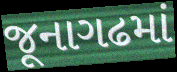
જૂનાગઢમાં